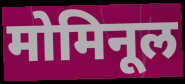
मोमिनूल